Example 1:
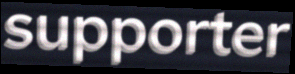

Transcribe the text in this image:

supporter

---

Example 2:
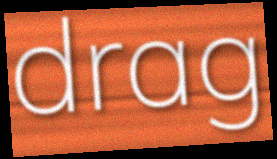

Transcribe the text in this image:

drag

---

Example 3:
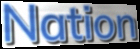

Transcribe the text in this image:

Nation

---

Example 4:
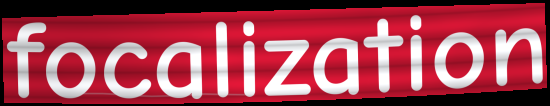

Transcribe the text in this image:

focalization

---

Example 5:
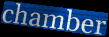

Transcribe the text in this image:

chamber